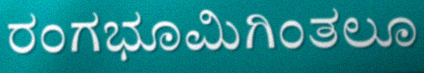
ರಂಗಭೂಮಿಗಿಂತಲೂ